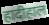
हादीहाल